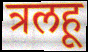
त्रलहू